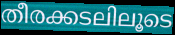
തീരക്കടലിലൂടെ